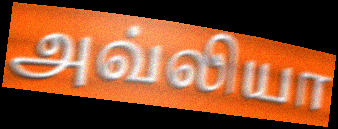
அவ்லியா